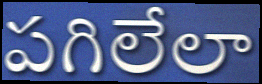
పగిలేలా